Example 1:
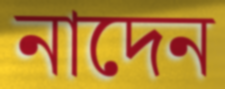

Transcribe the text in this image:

নাদেন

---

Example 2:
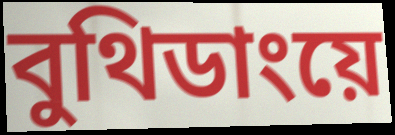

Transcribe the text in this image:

বুথিডাংয়ে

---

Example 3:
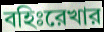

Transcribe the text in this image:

বহিঃরেখার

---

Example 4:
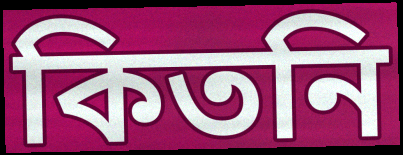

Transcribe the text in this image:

কিতনি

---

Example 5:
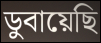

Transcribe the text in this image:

ডুবায়েছি